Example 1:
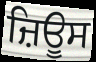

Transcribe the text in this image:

ਜ਼ਿਊਸ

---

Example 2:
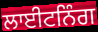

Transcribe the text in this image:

ਲਾਈਟਨਿੰਗ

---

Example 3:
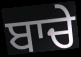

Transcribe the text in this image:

ਬਾਚੇ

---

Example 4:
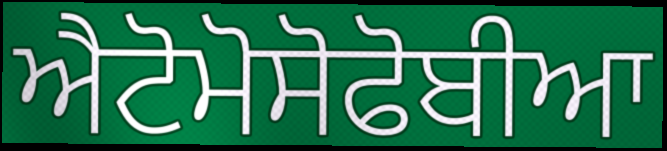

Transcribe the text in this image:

ਐਟੋਮੋਸੋਫੋਬੀਆ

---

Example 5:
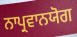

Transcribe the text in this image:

ਨਾਪ੍ਰਵਾਨਯੋਗ